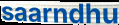
saarndhu